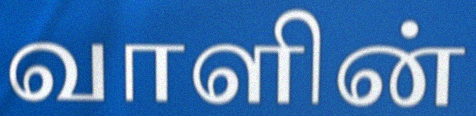
வாளின்